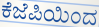
ಕೆಜೆಪಿಯಿಂದ